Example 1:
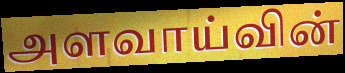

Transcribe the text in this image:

அளவாய்வின்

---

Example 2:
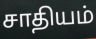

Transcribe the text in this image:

சாதியம்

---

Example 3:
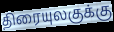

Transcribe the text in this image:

திரையுலகுக்கு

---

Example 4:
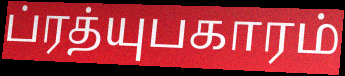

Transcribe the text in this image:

ப்ரத்யுபகாரம்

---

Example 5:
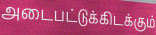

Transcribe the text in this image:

அடைபட்டுக்கிடக்கும்